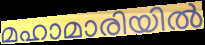
മഹാമാരിയിൽ